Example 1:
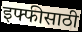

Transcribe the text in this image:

इफ्फीसाठी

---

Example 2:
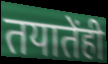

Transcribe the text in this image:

तयातेंही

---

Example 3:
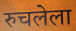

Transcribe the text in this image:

रुचलेला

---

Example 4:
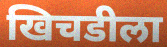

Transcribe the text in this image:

खिचडीला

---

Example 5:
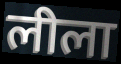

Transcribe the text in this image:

लीला